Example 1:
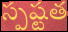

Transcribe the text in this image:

స్పష్టత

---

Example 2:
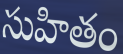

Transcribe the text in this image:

సుహితం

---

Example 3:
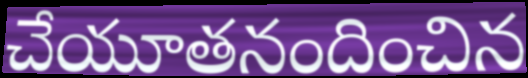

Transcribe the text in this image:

చేయూతనందించిన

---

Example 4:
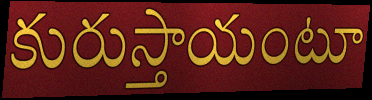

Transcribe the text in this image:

కురుస్తాయంటూ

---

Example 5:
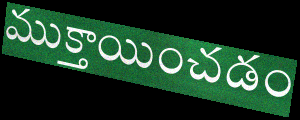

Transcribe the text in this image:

ముక్తాయించడం